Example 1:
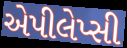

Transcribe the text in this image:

એપીલેપ્સી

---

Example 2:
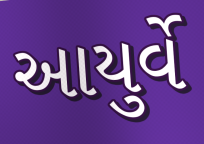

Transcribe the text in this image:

આયુર્વે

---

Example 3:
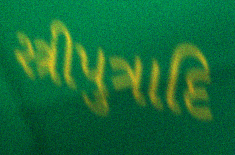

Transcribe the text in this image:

સ્ત્રીપુત્રાદિ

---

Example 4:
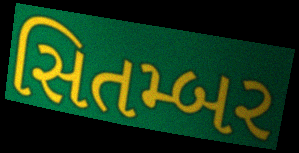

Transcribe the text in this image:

સિતમ્બર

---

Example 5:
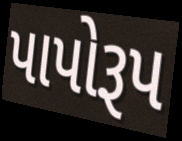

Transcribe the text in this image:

પાપોરૂપ